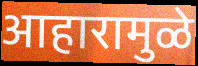
आहारामुळे